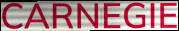
CARNEGIE